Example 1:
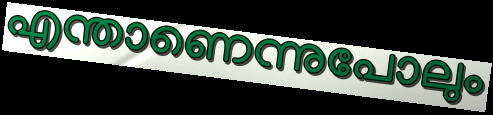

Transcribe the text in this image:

എന്താണെന്നുപോലും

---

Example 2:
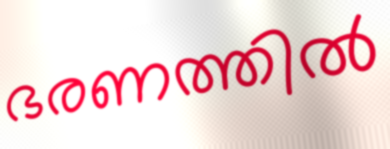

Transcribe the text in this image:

ഭരണത്തിൽ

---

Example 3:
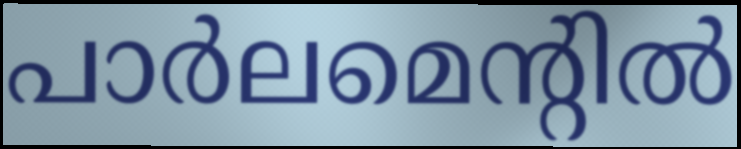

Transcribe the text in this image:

പാർലമെന്റിൽ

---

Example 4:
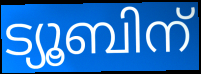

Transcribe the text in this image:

ട്യൂബിന്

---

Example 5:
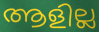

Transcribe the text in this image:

ആളില്ല